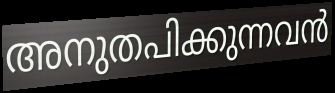
അനുതപിക്കുന്നവൻ